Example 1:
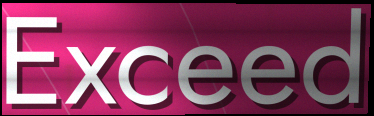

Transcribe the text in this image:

Exceed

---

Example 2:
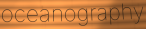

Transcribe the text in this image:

oceanography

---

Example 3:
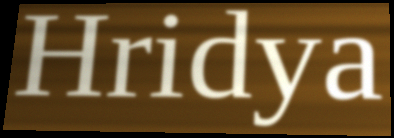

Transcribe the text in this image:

Hridya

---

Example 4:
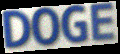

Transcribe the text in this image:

DOGE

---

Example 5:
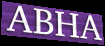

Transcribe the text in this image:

ABHA